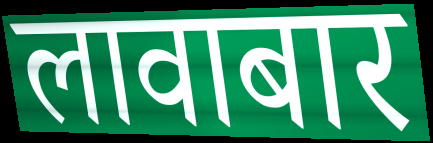
लावाबार